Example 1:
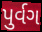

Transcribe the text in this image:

પુર્વગ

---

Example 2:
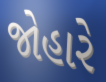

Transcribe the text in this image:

જોહારે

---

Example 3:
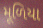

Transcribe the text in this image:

મૂળિયા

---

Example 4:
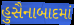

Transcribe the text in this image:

હુસૈનાબાદમાં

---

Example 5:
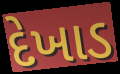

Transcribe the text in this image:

દેખાડ